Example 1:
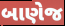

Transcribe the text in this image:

બાણેજ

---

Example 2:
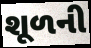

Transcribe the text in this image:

શૂળની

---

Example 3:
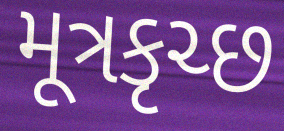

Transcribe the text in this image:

મૂત્રકૃચ્છ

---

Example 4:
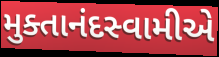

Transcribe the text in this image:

મુક્તાનંદસ્વામીએ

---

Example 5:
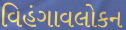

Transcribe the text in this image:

વિહંગાવલોકન